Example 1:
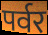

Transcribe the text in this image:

पर्वर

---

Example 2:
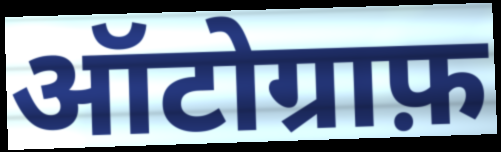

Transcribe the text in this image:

ऑटोग्राफ़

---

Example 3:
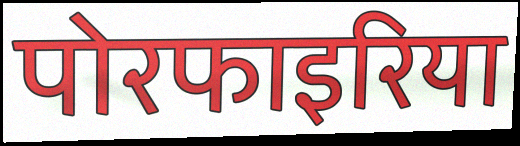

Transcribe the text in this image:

पोरफाइरिया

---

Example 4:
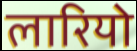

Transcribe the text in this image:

लारियो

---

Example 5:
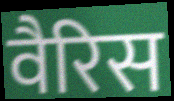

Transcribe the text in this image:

वैरिस